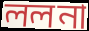
ললনা